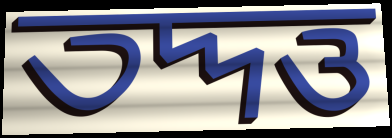
তদ্দত্ত